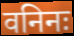
वनिनः